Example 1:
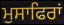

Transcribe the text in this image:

ਮੁਸਾਫਿਰਾਂ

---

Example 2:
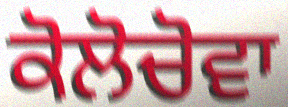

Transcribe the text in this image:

ਕੋਲੋਚੋਵਾ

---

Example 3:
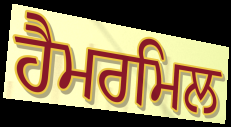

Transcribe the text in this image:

ਹੈਮਰਮਿਲ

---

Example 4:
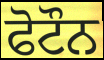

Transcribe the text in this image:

ਫੋਟੌਨ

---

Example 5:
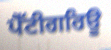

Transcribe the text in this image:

ਪੈੱਟੀਗਰਿਊ